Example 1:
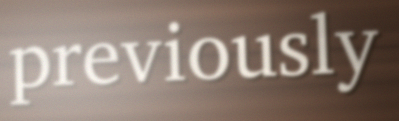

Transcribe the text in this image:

previously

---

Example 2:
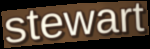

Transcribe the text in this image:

stewart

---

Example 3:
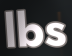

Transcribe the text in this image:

lbs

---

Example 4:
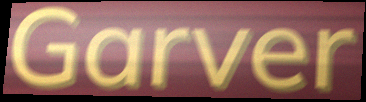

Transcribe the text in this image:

Garver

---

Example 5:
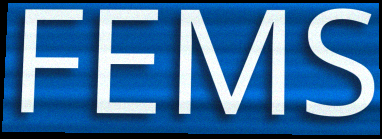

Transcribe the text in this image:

FEMS